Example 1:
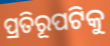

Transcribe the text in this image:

ପ୍ରତିରୂପଟିକୁ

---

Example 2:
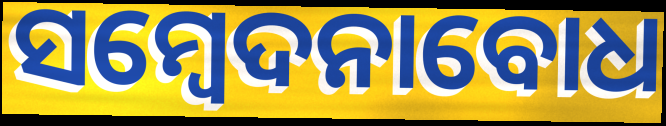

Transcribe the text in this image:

ସମ୍ବେଦନାବୋଧ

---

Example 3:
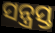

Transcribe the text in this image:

ସନ୍ତ୍ରସ୍ତ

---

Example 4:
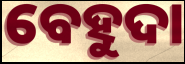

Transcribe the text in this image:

ବେହୁଦା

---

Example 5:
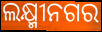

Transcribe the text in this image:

ଲକ୍ଷ୍ମୀନଗର